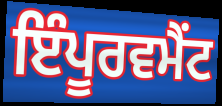
ਇੰਪੂਰਵਮੈਂਟ